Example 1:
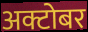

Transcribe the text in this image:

अक्टोबर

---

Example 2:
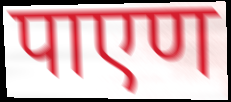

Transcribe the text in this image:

पाएण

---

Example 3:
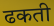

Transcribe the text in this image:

ढकती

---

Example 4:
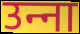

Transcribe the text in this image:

उन्ना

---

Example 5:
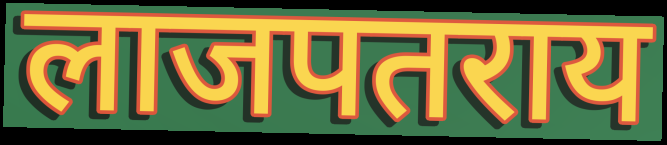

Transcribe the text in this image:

लाजपतराय